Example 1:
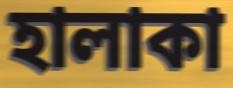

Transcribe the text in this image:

হালাকা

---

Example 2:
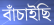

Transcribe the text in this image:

বাঁচাইছি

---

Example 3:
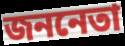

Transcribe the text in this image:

জননেতা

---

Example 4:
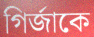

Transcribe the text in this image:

গির্জাকে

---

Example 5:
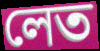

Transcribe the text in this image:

লেত